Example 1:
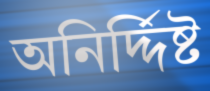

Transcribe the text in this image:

অনির্দ্দিষ্ট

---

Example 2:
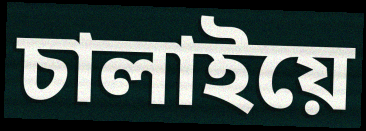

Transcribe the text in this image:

চালাইয়ে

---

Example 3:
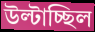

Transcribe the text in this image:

উল্টাচ্ছিল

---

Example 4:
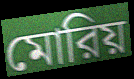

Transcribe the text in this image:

মোরিয়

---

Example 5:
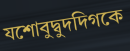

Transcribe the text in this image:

যশোবুদ্বুদদিগকে